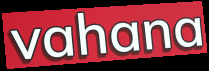
vahana